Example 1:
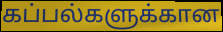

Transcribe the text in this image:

கப்பல்களுக்கான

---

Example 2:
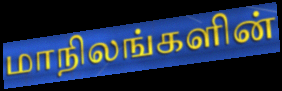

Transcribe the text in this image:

மாநிலங்களின்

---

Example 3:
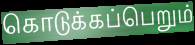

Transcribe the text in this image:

கொடுக்கப்பெறும்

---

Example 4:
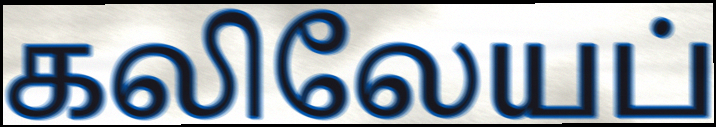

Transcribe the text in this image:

கலிலேயப்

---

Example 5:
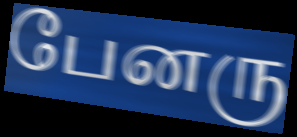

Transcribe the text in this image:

பேனரு